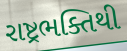
રાષ્ટ્રભક્તિથી